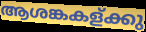
ആശങ്കകള്ക്കു